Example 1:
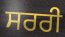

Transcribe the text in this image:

ਸਰਰੀ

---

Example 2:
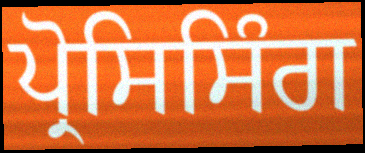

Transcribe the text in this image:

ਪ੍ਰੋਸਿਸਿੰਗ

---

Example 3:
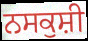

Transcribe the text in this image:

ਨਸਕੁਸ਼ੀ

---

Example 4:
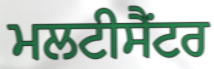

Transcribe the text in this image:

ਮਲਟੀਸੈਂਟਰ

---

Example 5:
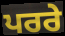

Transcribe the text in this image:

ਪਰਰੇ